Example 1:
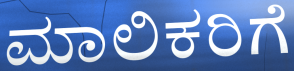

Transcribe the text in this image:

ಮಾಲಿಕರಿಗೆ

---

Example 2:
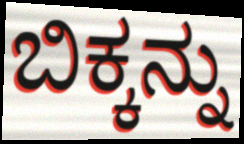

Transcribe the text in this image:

ಬಿಕ್ಕನ್ನು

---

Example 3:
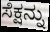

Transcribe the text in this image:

ಸೆಕ್ಷನ್ನು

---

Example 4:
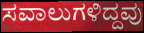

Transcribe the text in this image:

ಸವಾಲುಗಳಿದ್ದವು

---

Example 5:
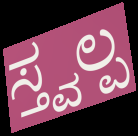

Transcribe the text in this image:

ಸ್ತ್ವಲ್ಪ